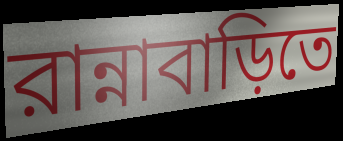
রান্নাবাড়িতে